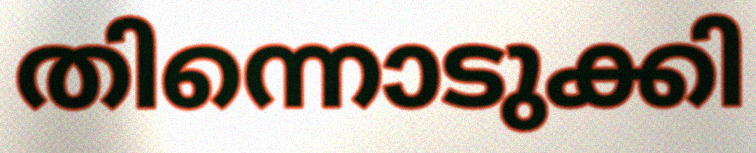
തിന്നൊടുക്കി